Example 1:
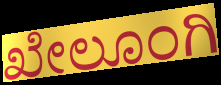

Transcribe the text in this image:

ಖೇಲೂಂಗಿ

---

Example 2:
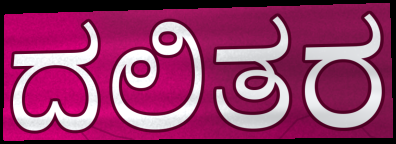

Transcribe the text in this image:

ದಲಿತರ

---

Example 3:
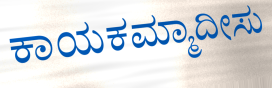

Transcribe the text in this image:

ಕಾಯಕಮ್ಮಾದೀಸು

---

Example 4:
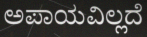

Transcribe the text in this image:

ಅಪಾಯವಿಲ್ಲದೆ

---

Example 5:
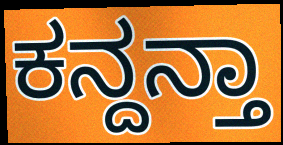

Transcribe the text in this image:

ಕನ್ದನ್ತಾ